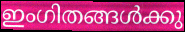
ഇംഗിതങ്ങൾക്കു